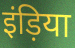
इंड़िया